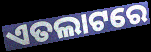
ଏତଲାଟରେ